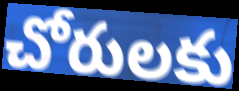
చోరులకు